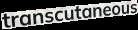
transcutaneous